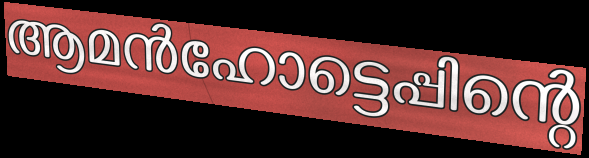
ആമൻഹോട്ടെപ്പിന്റെ